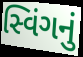
સ્વિંગનું